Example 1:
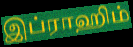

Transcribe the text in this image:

இப்ராஹிம்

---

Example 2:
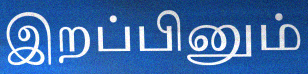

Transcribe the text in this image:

இறப்பினும்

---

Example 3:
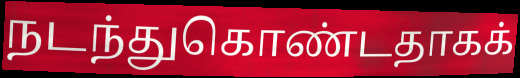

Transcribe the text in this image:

நடந்துகொண்டதாகக்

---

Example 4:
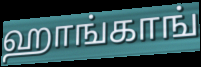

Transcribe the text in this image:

ஹாங்காங்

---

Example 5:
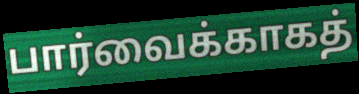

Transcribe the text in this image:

பார்வைக்காகத்